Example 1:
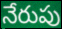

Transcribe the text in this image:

నేరుపు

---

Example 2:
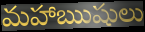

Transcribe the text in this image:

మహాఋషులు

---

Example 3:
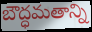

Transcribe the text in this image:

బౌద్ధమతాన్ని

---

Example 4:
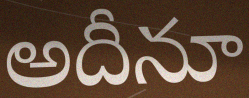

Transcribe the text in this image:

అదీనూ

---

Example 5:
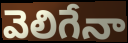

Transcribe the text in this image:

వెలిగేనా